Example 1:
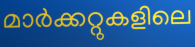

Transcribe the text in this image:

മാർക്കറ്റുകളിലെ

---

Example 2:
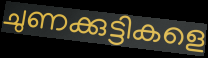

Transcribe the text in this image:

ചുണക്കുട്ടികളെ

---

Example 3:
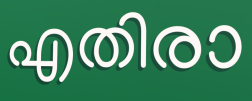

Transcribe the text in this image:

എതിരാ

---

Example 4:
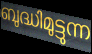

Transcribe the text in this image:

ബുദ്ധിമുട്ടുന്ന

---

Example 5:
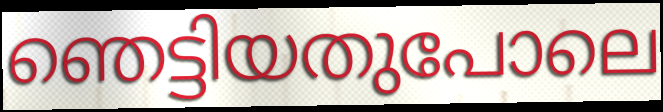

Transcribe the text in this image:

ഞെട്ടിയതുപോലെ